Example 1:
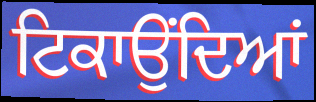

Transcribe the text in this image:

ਟਿਕਾਉਂਦਿਆਂ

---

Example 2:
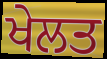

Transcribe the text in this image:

ਖੇਲਤ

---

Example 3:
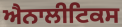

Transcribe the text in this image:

ਐਨਾਲੀਟਿਕਸ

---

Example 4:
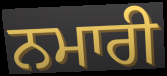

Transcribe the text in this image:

ਨਮਾਰੀ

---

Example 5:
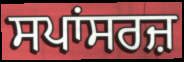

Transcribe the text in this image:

ਸਪਾਂਸਰਜ਼